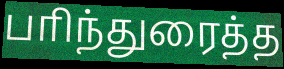
பரிந்துரைத்த